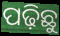
ପଢ଼ିଛୁ